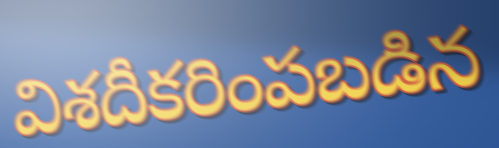
విశదీకరింపబడిన